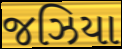
જઝિયા